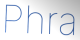
Phra